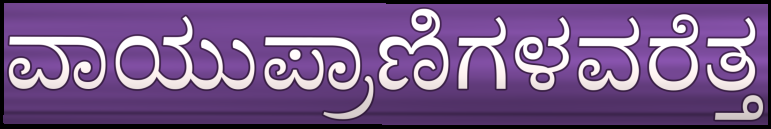
ವಾಯುಪ್ರಾಣಿಗಳವರೆತ್ತ